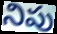
నిపు